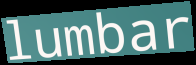
lumbar